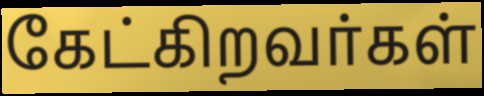
கேட்கிறவர்கள்